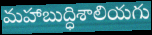
మహాబుద్ధిశాలియగు